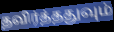
தவிர்த்ததுவும்